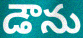
డౌను